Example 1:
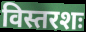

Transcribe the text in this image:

विस्तरशः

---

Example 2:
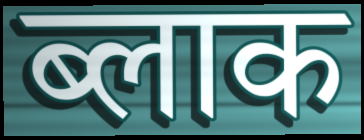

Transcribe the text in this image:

ब्लाक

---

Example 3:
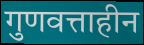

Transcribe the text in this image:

गुणवत्ताहीन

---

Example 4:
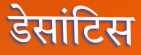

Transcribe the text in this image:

डेसांटिस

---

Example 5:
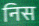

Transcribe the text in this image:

निस